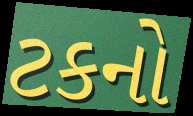
ટકનો